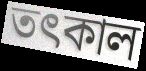
তৎকাল